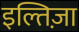
इल्तिज़ा